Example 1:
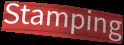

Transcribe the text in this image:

Stamping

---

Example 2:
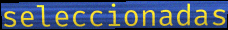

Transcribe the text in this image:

seleccionadas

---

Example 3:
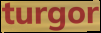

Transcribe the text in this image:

turgor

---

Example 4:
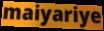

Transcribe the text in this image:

maiyariye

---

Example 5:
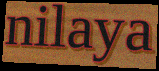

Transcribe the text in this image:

nilaya